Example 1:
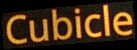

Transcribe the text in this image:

Cubicle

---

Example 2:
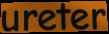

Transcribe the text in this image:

ureter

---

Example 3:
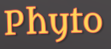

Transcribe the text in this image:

Phyto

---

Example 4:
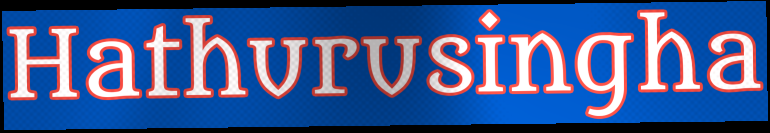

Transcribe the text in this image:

Hathurusingha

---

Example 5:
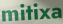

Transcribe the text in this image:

mitixa